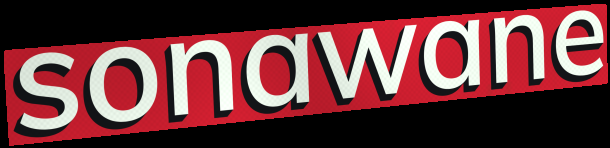
sonawane